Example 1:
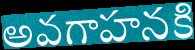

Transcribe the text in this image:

అవగాహనకి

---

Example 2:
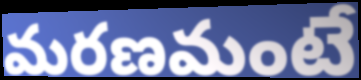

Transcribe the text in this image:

మరణమంటే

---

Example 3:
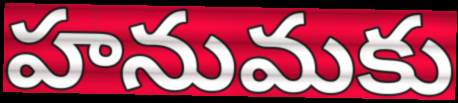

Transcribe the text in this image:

హనుమకు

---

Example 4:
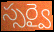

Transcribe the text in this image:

స్సర్వై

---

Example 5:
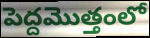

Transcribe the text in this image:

పెద్దమొత్తంలో